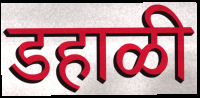
डहाळी